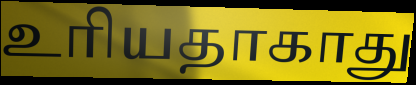
உரியதாகாது